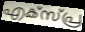
എക്സ്പ്ര